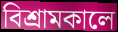
বিশ্রামকালে